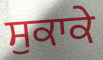
ਸੁਕਾਕੇ